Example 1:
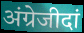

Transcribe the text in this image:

अंग्रेजीदां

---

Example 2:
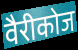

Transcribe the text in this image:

वैरीकोज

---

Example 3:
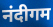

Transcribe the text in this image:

नंदीगम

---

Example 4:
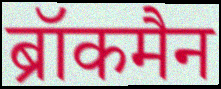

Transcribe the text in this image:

ब्रॉकमैन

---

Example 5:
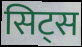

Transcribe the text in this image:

सिट्स